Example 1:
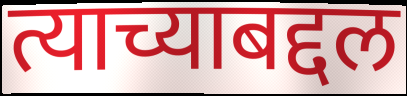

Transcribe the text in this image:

त्याच्याबद्दल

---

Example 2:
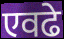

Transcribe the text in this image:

एवढे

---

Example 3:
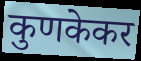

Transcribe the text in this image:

कुणकेकर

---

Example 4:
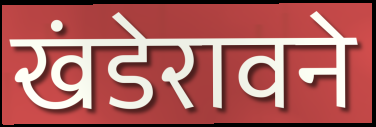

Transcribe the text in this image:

खंडेरावने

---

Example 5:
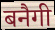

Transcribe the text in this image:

बनैगी